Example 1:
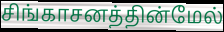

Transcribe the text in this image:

சிங்காசனத்தின்மேல்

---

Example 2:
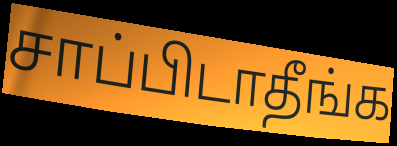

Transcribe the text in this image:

சாப்பிடாதீங்க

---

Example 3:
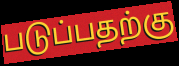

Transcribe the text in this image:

படுப்பதற்கு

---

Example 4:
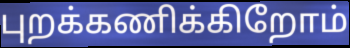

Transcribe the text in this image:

புறக்கணிக்கிறோம்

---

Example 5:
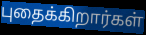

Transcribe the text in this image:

புதைக்கிறார்கள்